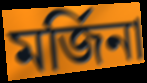
মর্জিনা